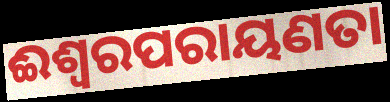
ଈଶ୍ୱରପରାୟଣତା